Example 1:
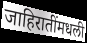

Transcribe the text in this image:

जाहिरातींमधली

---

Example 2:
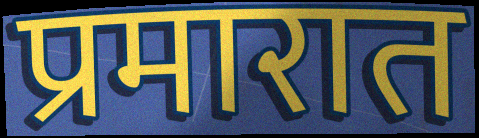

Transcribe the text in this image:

प्रमारात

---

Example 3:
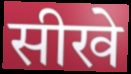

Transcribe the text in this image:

सीखे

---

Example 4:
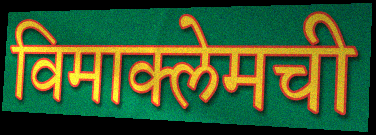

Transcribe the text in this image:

विमाक्लेमची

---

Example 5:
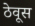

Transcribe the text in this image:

ठेवूस